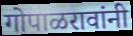
गोपाळरावांनी